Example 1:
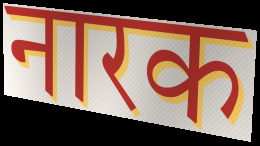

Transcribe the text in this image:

नारक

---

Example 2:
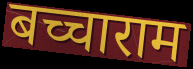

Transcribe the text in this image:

बच्चाराम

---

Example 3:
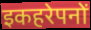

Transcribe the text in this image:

इकहरेपनों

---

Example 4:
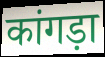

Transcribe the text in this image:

कांगड़ा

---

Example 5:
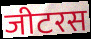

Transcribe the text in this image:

जीटरस